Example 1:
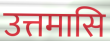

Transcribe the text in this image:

उत्तमासि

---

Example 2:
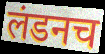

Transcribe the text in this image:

लंडनच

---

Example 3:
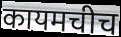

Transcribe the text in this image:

कायमचीच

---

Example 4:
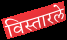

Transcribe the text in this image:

विस्तारले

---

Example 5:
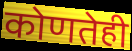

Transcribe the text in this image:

कोणतेही